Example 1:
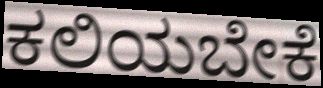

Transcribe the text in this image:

ಕಲಿಯಬೇಕೆ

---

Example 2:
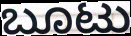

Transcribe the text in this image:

ಬೂಟು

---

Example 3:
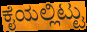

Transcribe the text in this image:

ಕೈಯಲ್ಲಿಟ್ಟು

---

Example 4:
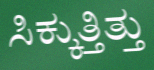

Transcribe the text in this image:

ಸಿಕ್ಕುತ್ತಿತ್ತು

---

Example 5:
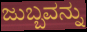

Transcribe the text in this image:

ಜುಬ್ಬವನ್ನು